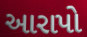
આરાપો